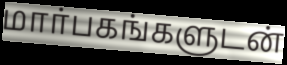
மார்பகங்களுடன்